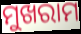
ମୁଖରାମ